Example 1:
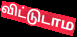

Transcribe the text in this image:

விட்டுடாம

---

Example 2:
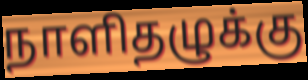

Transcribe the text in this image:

நாளிதழுக்கு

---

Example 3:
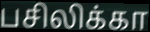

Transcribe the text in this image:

பசிலிக்கா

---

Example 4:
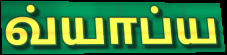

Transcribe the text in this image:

வ்யாப்ய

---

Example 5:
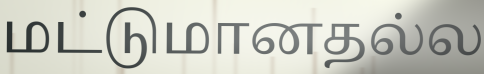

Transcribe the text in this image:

மட்டுமானதல்ல